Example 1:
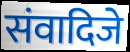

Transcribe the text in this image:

संवादिजे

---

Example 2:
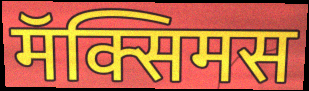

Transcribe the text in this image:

मॅक्सिमस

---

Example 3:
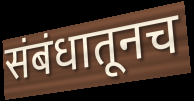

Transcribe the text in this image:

संबंधातूनच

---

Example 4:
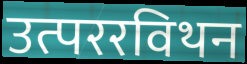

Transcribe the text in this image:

उत्पररविथन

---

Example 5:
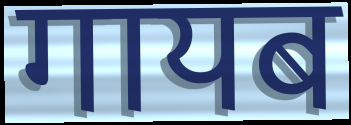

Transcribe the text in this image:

गायब